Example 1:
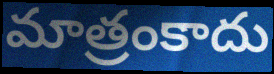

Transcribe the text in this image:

మాత్రంకాదు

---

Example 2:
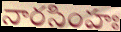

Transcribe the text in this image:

నారసింహః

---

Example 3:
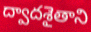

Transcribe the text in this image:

ద్వాదశైతాని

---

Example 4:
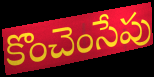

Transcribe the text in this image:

కొంచెంసేపు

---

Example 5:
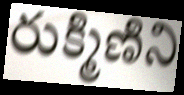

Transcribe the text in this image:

రుక్మిణిని